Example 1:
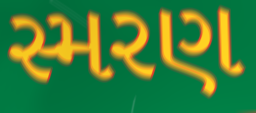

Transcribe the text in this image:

સ્મરણ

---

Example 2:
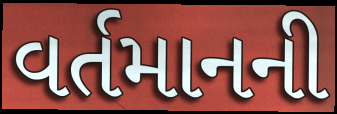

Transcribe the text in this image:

વર્તમાનની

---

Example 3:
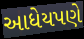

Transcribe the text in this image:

આધેયપણે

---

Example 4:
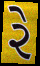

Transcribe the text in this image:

રે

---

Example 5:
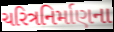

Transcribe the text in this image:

ચરિત્રનિર્માણના